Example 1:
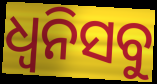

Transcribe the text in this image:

ଧ୍ୱନିସବୁ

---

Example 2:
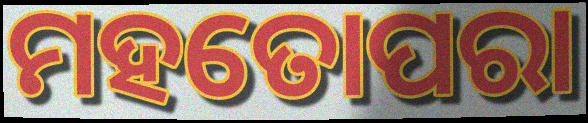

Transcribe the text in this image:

ମହତୋପରା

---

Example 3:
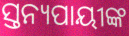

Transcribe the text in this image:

ସ୍ତନ୍ୟପାୟୀଙ୍କ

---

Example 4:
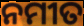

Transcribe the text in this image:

ନମୀତ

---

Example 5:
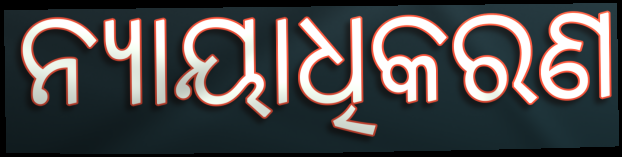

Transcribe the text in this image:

ନ୍ୟାୟାଧିକରଣ